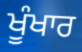
ਖੂੰਖਾਰ